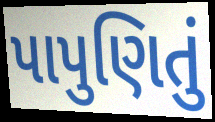
પાપુણિતું